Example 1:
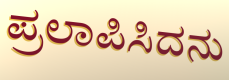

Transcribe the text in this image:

ಪ್ರಲಾಪಿಸಿದನು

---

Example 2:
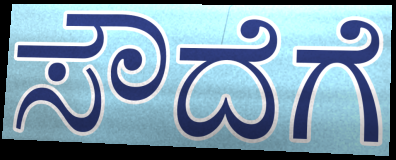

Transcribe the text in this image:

ಸೌದೆಗೆ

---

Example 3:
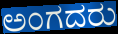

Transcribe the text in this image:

ಅಂಗದರು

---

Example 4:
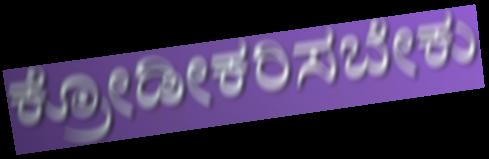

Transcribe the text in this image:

ಕ್ರೋಡೀಕರಿಸಬೇಕು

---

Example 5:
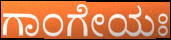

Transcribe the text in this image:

ಗಾಂಗೇಯಃ